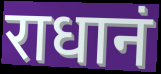
राधानं